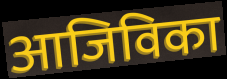
आजिविका